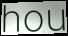
hou